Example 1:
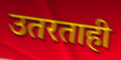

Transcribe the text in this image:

उतरताही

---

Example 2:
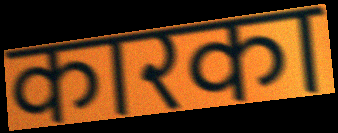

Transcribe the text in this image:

कारका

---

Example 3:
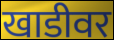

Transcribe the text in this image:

खाडीवर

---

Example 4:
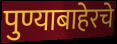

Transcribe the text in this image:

पुण्याबाहेरचे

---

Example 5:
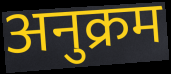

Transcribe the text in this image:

अनुक्रम